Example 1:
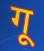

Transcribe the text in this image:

गू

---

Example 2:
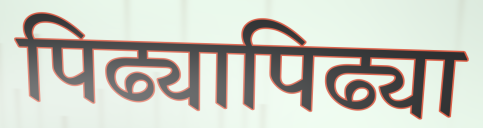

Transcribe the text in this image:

पिढ्यापिढ्या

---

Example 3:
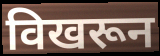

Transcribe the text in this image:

विखरून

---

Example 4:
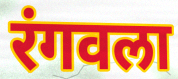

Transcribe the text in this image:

रंगवला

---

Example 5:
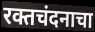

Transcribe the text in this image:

रक्तचंदनाचा